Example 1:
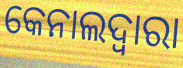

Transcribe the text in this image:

କେନାଲଦ୍ଵାରା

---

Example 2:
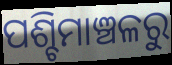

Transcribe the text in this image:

ପଶ୍ଚିମାଞ୍ଚଳରୁ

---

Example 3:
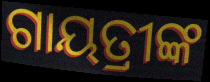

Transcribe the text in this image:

ଗାୟତ୍ରୀଙ୍କ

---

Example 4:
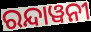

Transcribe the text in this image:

ରନ୍ଦାୱନୀ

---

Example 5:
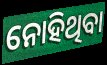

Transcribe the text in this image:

ନୋହିଥିବା